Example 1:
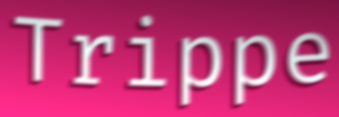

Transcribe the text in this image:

Trippe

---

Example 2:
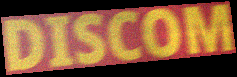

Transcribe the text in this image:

DISCOM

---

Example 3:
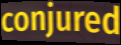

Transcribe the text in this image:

conjured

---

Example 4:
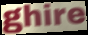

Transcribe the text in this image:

ghire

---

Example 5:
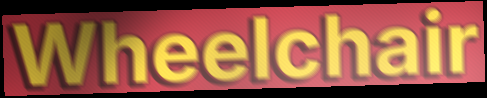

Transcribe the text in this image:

Wheelchair